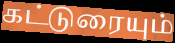
கட்டுரையும்